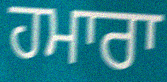
ਹਮਾਰਾ